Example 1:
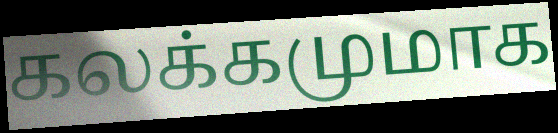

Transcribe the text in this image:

கலக்கமுமாக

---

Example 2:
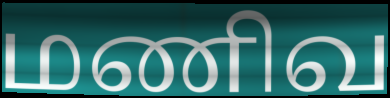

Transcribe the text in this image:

மணிவ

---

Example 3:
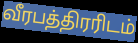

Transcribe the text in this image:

வீரபத்திரரிடம்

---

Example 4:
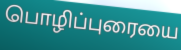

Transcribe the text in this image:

பொழிப்புரையை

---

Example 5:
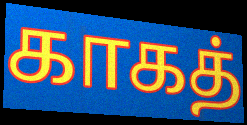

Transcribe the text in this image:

காகத்